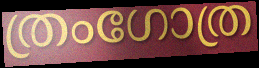
ത്രംഗോത്ര